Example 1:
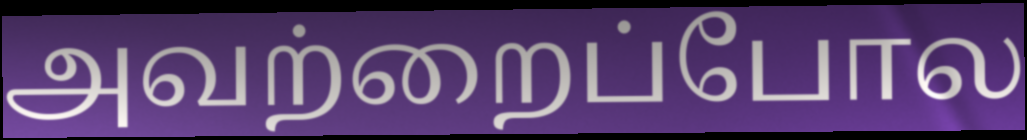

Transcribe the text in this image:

அவற்றைப்போல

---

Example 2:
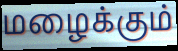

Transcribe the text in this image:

மழைக்கும்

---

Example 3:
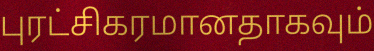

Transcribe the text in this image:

புரட்சிகரமானதாகவும்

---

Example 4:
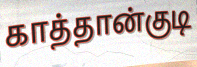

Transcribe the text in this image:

காத்தான்குடி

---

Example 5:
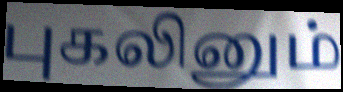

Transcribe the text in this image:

புகலினும்